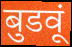
बुडवूं